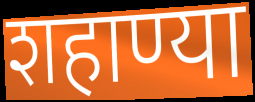
शहाण्या